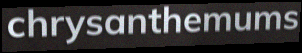
chrysanthemums